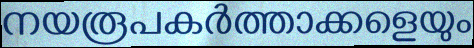
നയരൂപകർത്താക്കളെയും